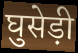
घुसेड़ी